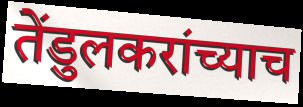
तेंडुलकरांच्याच